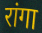
रांगा